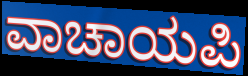
ವಾಚಾಯಪಿ